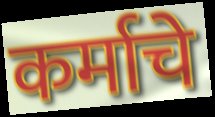
कर्माचे